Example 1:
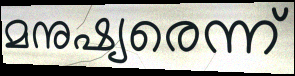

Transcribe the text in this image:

മനുഷ്യരെന്ന്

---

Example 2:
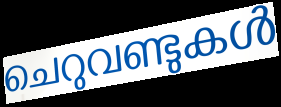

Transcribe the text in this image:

ചെറുവണ്ടുകൾ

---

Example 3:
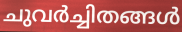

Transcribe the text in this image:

ചുവർച്ചിതങ്ങൾ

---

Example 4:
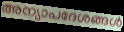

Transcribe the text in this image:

അന്യാപദേശങ്ങൾ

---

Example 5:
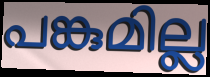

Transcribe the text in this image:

പങ്കുമില്ല